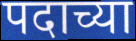
पदाच्या